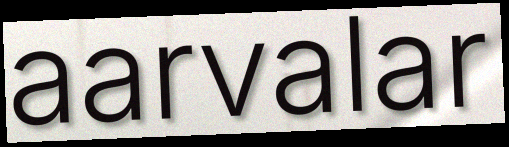
aarvalar